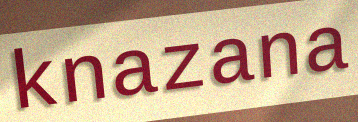
knazana